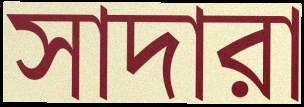
সাদারা